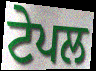
ਟੇਪਲ